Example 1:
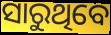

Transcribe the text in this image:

ସାରୁଥିବେ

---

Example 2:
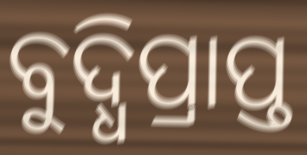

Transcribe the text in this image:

ବୁଦ୍ଧିପ୍ରାପ୍ତ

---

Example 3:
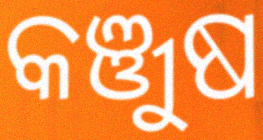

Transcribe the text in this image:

କଞ୍ଜୁଷ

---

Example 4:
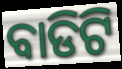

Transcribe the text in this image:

ବାଡିଟି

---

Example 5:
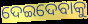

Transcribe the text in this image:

ଦେଇଦେବାକୁ